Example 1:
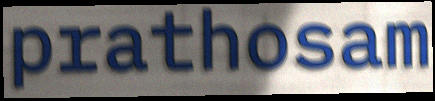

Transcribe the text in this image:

prathosam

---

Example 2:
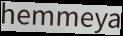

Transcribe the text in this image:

hemmeya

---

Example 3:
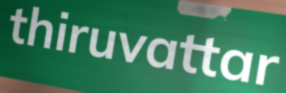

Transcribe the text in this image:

thiruvattar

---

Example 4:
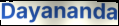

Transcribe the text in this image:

Dayananda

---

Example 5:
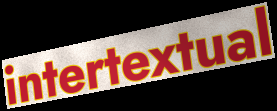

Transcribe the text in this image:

intertextual